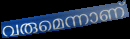
വരുമെന്നാണ്